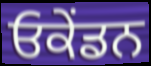
ਓਕੇਂਡਨ